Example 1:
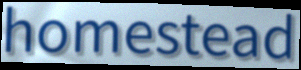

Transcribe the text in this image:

homestead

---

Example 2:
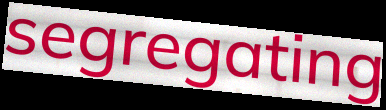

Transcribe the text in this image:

segregating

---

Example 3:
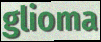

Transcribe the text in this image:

glioma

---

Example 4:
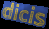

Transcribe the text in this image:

dicis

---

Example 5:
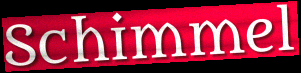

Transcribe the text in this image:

Schimmel